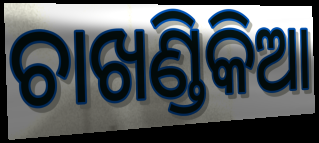
ଚାଖଣ୍ଡିକିଆ